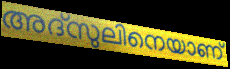
അദ്സുലിനെയാണ്